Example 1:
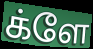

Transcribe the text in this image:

க்ளே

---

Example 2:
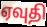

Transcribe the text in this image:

ஏவுதி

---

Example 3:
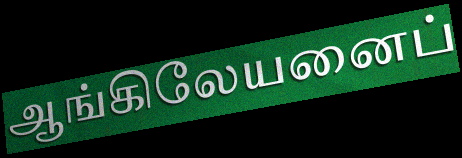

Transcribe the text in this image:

ஆங்கிலேயனைப்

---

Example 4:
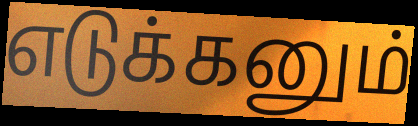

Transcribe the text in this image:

எடுக்கனும்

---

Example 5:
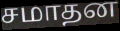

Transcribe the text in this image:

சமாதன